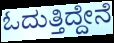
ಓದುತ್ತಿದ್ದೇನೆ